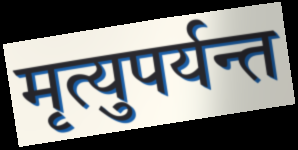
मृत्युपर्यन्त